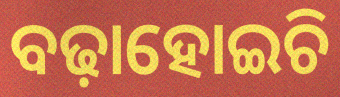
ବଢ଼ାହୋଇଚି